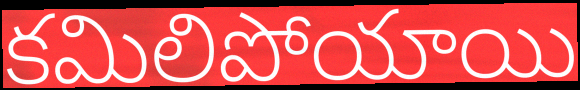
కమిలిపోయాయి